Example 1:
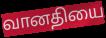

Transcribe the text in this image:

வானதியை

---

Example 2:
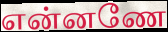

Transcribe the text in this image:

என்னணே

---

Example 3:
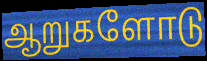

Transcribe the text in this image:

ஆறுகளோடு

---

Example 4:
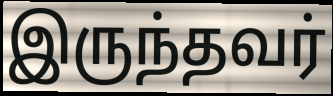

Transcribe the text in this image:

இருந்தவர்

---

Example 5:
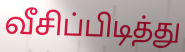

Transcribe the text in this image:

வீசிப்பிடித்து